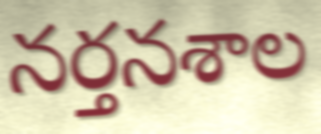
నర్తనశాల